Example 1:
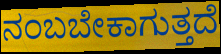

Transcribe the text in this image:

ನಂಬಬೇಕಾಗುತ್ತದೆ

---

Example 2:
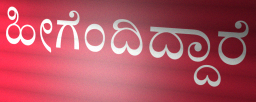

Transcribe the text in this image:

ಹೀಗೆಂದಿದ್ದಾರೆ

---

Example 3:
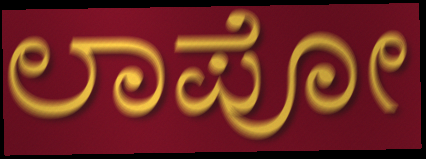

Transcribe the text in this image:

ಲಾಪೋ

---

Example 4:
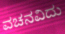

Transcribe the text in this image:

ವಚನವಿದು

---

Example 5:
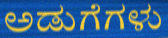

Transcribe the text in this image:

ಅಡುಗೆಗಳು